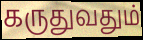
கருதுவதும்